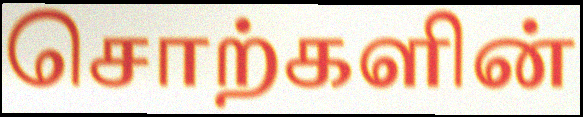
சொற்களின்